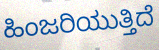
ಹಿಂಜರಿಯುತ್ತಿದೆ